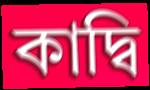
কাদ্বি